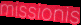
missionis